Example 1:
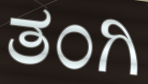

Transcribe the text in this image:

ತಂಗಿ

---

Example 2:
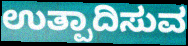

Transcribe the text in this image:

ಉತ್ಪಾದಿಸುವ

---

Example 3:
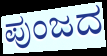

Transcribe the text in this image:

ಪುಂಜದ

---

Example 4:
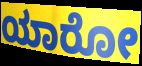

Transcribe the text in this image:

ಯಾರೋ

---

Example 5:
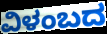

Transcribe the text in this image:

ವಿಳಂಬದ